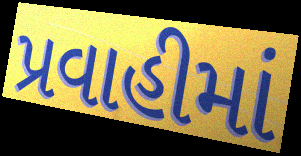
પ્રવાહીમાં